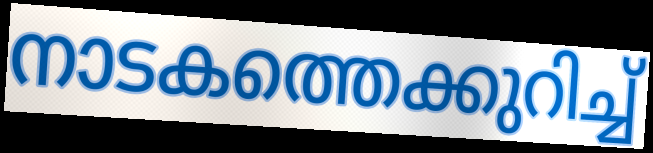
നാടകത്തെക്കുറിച്ച്